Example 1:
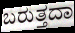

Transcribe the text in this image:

ಬರುತ್ತದಾ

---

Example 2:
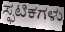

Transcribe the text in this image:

ಸ್ಫಟಿಕಗಳು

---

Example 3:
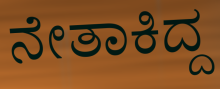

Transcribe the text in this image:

ನೇತಾಕಿದ್ದ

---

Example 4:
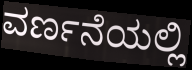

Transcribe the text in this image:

ವರ್ಣನೆಯಲ್ಲಿ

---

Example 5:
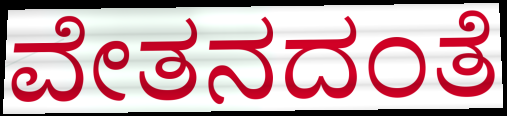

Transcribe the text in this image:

ವೇತನದಂತೆ